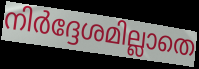
നിർദ്ദേശമില്ലാതെ